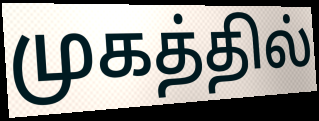
முகத்தில்